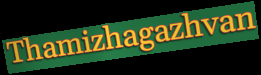
Thamizhagazhvan